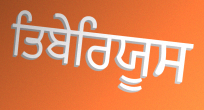
ਤਿਬੇਰਿਯੂਸ